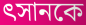
ৎসানকে